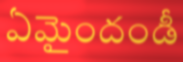
ఏమైందండీ